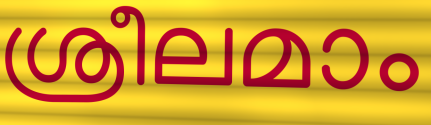
ശ്രീലമാം